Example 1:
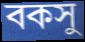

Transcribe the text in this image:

বকসু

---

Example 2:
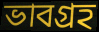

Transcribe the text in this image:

ভাবগ্রহ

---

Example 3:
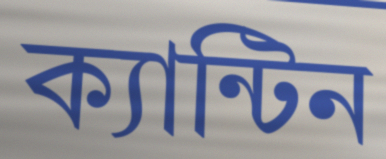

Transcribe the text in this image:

ক্যান্টিন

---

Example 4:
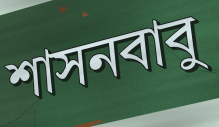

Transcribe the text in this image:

শাসনবাবু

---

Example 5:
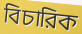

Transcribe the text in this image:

বিচারিক